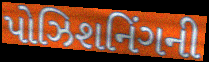
પોઝિશનિંગની